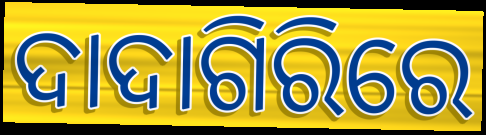
ଦାଦାଗିରିରେ